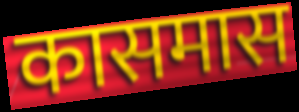
कासमास